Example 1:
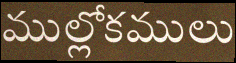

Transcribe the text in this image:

ముల్లోకములు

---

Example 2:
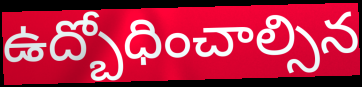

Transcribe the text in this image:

ఉద్బోధించాల్సిన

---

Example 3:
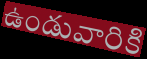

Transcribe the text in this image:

ఉండువారికి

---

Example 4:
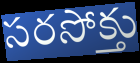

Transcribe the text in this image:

సరసోక్తు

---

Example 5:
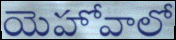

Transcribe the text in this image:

యెహోవాలో